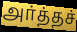
அர்த்தச்